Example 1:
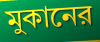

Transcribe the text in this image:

মুকানের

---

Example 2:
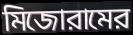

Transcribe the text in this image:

মিজোরামের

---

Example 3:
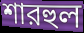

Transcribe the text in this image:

শারহুল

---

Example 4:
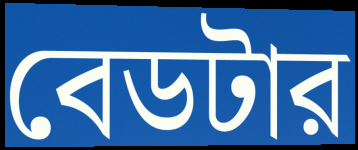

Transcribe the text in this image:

বেডটার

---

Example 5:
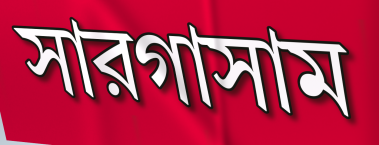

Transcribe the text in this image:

সারগাসাম